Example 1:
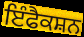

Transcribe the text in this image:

ਇੰਫੈਕਸ਼ਨ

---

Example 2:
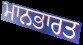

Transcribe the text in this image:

ਮਾਨਭਾਰਤ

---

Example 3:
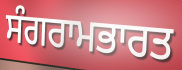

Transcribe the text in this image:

ਸੰਗਰਾਮਭਾਰਤ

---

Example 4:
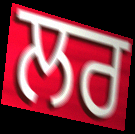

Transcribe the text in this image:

ਲਰ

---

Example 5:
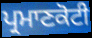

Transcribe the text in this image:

ਪ੍ਰਮਾਣਕੋਟੀ